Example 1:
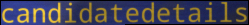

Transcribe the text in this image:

candidatedetails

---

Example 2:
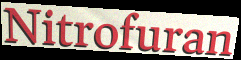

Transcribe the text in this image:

Nitrofuran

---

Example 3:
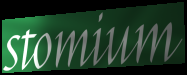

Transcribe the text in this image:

stomium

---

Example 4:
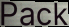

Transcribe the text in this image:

Pack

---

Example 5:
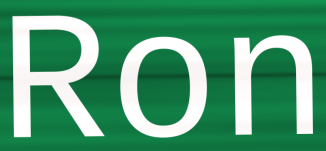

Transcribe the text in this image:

Ron